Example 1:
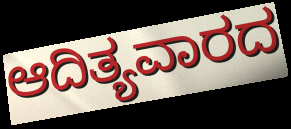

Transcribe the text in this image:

ಆದಿತ್ಯವಾರದ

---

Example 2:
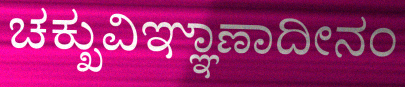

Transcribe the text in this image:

ಚಕ್ಖುವಿಞ್ಞಾಣಾದೀನಂ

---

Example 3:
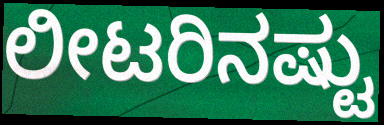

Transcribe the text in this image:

ಲೀಟರಿನಷ್ಟು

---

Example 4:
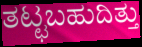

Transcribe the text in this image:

ತಟ್ಟಬಹುದಿತ್ತು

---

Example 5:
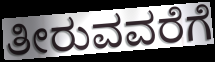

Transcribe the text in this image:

ತೀರುವವರೆಗೆ